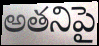
అతనిపై